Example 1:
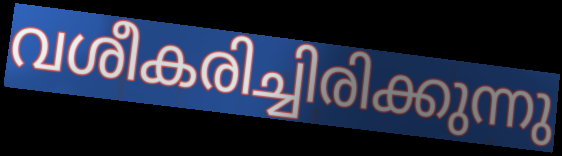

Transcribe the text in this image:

വശീകരിച്ചിരിക്കുന്നു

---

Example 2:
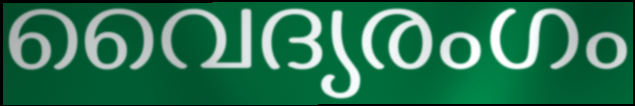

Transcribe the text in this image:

വൈദ്യരംഗം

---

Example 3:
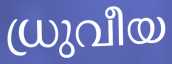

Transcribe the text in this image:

ധ്രുവീയ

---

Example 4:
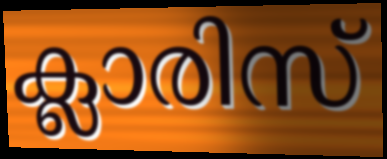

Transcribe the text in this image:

ക്ലാരിസ്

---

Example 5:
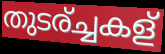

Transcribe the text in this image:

തുടര്ച്ചകള്